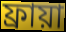
ফ্রায়া